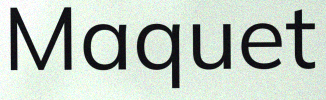
Maquet